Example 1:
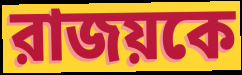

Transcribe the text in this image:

রাজয়কে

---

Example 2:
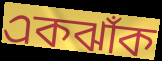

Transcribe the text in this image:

একঝাঁক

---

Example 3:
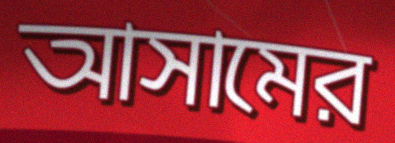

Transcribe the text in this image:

আসামের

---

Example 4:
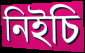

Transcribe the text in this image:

নিইচি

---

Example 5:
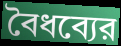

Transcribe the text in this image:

বৈধব্যের